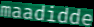
maadidde